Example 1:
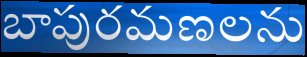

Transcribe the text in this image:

బాపురమణలను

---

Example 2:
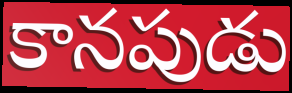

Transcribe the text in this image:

కానపుడు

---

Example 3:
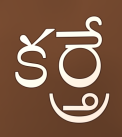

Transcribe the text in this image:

కర్త్రే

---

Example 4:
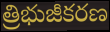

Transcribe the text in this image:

త్రిభుజీకరణ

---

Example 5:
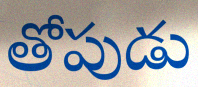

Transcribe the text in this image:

తోపుడు